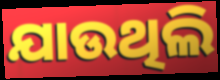
ଯାଉଥିଲି